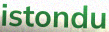
istondu